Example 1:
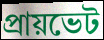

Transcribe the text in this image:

প্রায়ভেট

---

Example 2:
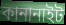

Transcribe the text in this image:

কানানাইট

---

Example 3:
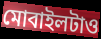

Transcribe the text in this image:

মোবাইলটাও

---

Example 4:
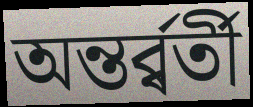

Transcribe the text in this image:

অন্তর্র্বর্তী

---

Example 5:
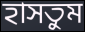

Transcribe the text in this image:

হাসতুম